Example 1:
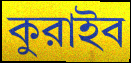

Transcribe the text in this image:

কুরাইব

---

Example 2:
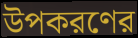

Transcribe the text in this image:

উপকরণের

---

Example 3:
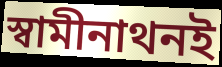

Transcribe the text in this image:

স্বামীনাথনই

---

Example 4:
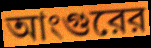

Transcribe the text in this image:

আংগুরের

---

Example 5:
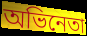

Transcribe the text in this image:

অভিনেতা